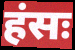
हंसः